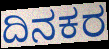
ದಿನಕರ